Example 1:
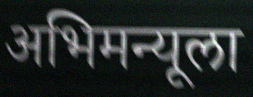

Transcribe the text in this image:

अभिमन्यूला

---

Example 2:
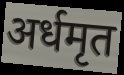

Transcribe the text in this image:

अर्धमृत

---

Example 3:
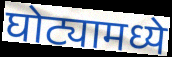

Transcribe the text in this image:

घोट्यामध्ये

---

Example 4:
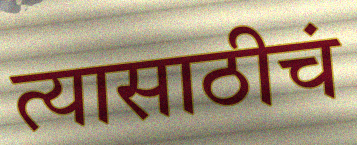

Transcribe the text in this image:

त्यासाठीचं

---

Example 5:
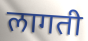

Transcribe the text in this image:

लागती